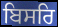
ਬਿਸਰਿ